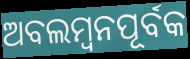
ଅବଲମ୍ୱନପୂର୍ବକ